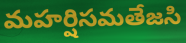
మహర్షిసమతేజసి